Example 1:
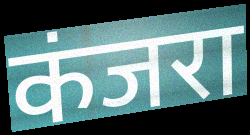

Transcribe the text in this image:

कंजरा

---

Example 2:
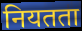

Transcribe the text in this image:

नियतता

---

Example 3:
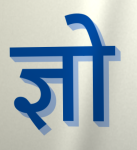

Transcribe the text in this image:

ज्ञो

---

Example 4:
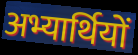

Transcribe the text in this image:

अभ्‍यार्थियों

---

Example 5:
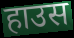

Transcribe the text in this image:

हाउस